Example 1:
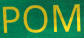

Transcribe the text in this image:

POM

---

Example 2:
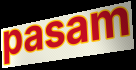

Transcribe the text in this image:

pasam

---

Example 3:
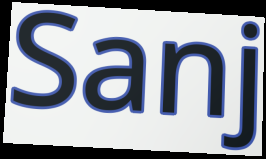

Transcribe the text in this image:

Sanj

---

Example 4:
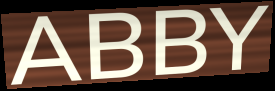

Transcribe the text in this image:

ABBY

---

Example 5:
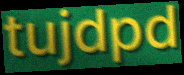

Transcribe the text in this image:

tujdpd